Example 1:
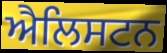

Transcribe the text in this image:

ਐਲਿਸਟਨ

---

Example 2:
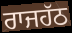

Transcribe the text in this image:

ਰਾਜਹੱਠ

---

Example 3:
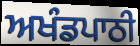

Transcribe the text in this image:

ਅਖੰਡਪਾਠੀ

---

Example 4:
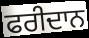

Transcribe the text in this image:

ਫਰੀਦਾਨ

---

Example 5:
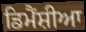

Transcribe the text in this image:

ਡਿਮੈਂਸ਼ੀਆ